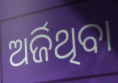
ଅର୍ଜିଥିବା